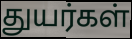
துயர்கள்